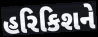
હરિકિશને